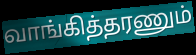
வாங்கித்தரணும்